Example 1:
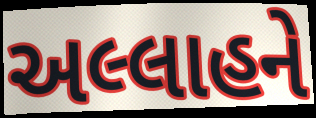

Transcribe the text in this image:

અલ્લાહને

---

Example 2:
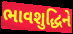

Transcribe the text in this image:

ભાવશુદ્ધિને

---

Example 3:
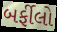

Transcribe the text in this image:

બર્ફીલો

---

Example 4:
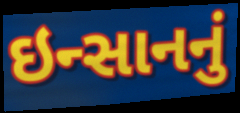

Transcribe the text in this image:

ઇન્સાનનું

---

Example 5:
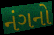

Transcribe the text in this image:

નંગનો